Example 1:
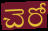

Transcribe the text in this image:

చెరో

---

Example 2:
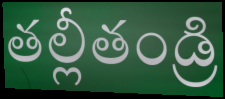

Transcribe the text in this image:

తల్లీతండ్రి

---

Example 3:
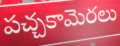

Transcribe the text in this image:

పచ్చకామెరలు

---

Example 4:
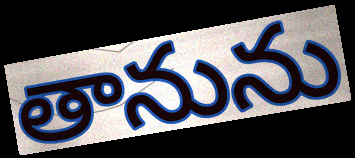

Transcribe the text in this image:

తానును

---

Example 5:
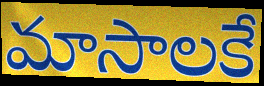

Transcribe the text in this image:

మాసాలకే